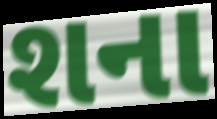
શના